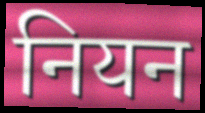
नियन